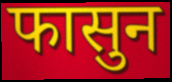
फासुन